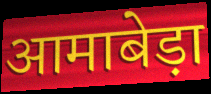
आमाबेड़ा